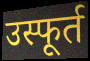
उस्फूर्त